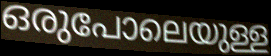
ഒരുപോലെയുള്ള